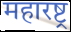
महारष्ट्र